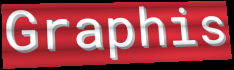
Graphis